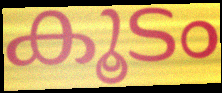
കൂടം